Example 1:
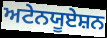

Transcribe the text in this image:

ਅਟੇਨਯੂਏਸ਼ਨ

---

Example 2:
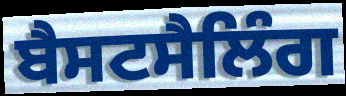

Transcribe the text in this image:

ਬੈਸਟਸੈਲਿੰਗ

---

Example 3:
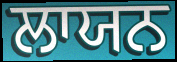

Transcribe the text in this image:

ਲਾਯਨ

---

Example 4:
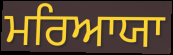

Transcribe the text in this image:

ਮਰਿਆਯਾ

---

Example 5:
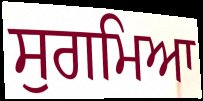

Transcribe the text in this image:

ਸੁਗਮਿਆ